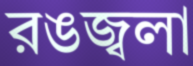
রঙজ্বলা